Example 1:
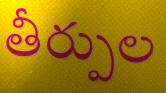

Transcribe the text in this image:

తీర్పుల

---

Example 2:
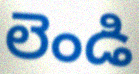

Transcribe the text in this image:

లెండి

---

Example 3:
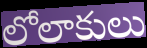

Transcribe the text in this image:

లోలాకులు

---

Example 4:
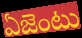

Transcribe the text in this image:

ఏజెంటు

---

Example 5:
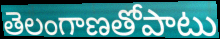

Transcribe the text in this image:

తెలంగాణతోపాటు